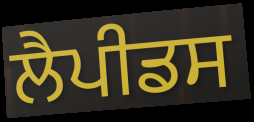
ਲੈਪੀਡਸ